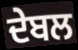
ਦੇਬਲ